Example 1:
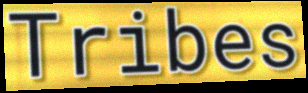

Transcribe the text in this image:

Tribes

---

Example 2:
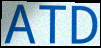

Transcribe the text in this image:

ATD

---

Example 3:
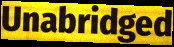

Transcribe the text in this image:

Unabridged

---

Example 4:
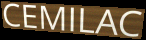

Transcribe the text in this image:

CEMILAC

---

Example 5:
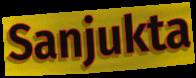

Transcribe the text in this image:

Sanjukta